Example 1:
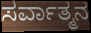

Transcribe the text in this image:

ಸರ್ವಾತ್ಮನ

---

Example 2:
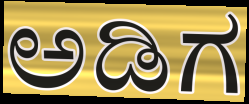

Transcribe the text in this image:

ಅಡಿಗ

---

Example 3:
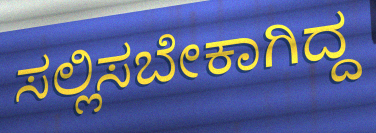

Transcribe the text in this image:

ಸಲ್ಲಿಸಬೇಕಾಗಿದ್ದ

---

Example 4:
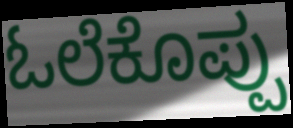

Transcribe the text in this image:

ಓಲೆಕೊಪ್ಪು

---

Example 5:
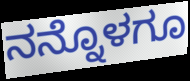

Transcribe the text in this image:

ನನ್ನೊಳಗೂ